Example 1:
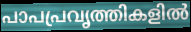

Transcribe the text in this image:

പാപപ്രവൃത്തികളിൽ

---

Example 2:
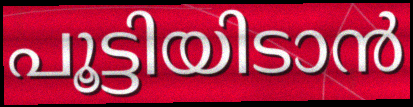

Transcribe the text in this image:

പൂട്ടിയിടാൻ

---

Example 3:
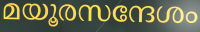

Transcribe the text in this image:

മയൂരസന്ദേശം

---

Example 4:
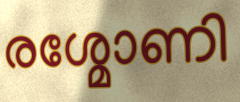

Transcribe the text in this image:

രശ്മോണി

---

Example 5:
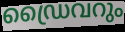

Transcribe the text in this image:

ഡ്രൈവറും